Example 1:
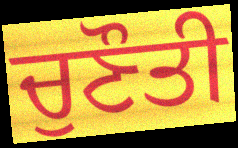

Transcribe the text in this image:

ਚੁਣੌਤੀ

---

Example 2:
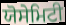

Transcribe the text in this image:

ਯੋਸੇਮਿਟੀ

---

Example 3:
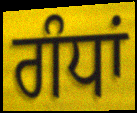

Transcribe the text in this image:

ਗੰਧਾਂ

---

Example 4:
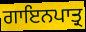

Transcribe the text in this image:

ਗਾਇਨਪਾਤ੍ਰ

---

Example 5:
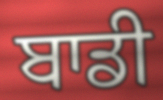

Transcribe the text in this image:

ਬਾਡੀ